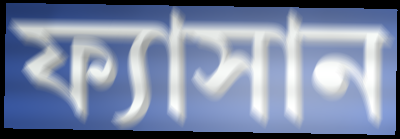
ফ্যাসান